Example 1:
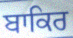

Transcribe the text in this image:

ਬਾਕਿਰ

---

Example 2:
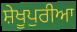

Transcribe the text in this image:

ਸ਼ੇਖੂਪੁਰੀਆ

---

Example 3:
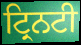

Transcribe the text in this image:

ਟ੍ਰਿਨਟੀ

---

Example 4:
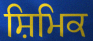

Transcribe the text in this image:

ਸ਼ਿਮਿਕ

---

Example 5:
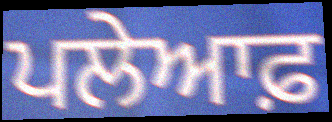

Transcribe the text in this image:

ਪਲੇਆਫ਼